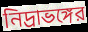
নিদ্রাভঙ্গের